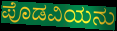
ಪೊಡವಿಯನು